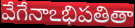
వేగేనాఽభిపతితా